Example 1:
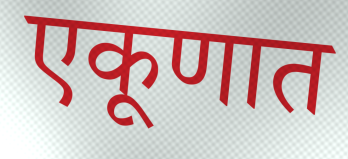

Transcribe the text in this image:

एकूणात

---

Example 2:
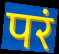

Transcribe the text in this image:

परं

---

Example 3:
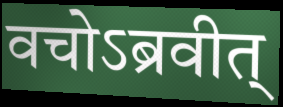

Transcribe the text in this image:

वचोऽब्रवीत्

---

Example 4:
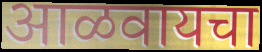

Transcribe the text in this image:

आळवायचा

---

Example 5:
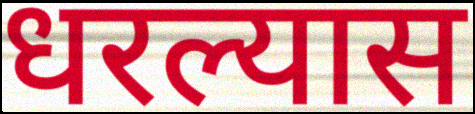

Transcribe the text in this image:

धरल्यास